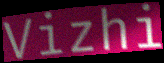
Vizhi